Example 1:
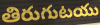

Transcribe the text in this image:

తిరుగుటయు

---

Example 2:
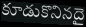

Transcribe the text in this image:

కూడుకొనినదై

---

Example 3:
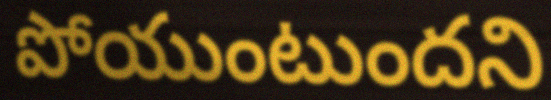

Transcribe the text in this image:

పోయుంటుందని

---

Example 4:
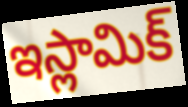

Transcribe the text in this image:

ఇస్లామిక్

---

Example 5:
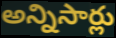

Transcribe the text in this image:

అన్నిసార్లు